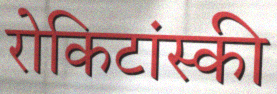
रोकिटांस्की